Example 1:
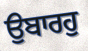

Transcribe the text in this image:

ਉਬਾਰਹੁ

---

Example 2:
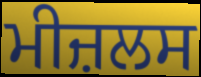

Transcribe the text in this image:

ਮੀਜ਼ਲਸ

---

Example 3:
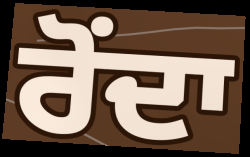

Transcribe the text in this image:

ਰੋਂਦਾ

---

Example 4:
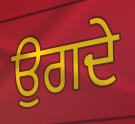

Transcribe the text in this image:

ਉਗਦੇ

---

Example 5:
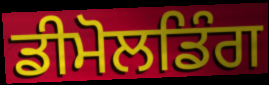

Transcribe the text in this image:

ਡੀਮੋਲਡਿੰਗ